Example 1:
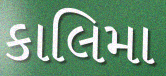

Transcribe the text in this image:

કાલિમા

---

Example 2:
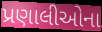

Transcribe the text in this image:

પ્રણાલીઓના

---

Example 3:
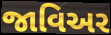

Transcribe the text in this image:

જાવિઅર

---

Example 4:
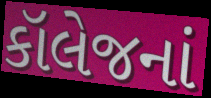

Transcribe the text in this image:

કૉલેજનાં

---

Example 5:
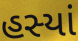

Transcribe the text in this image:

હસ્યાં